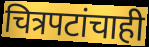
चित्रपटांचाही